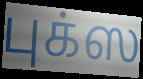
புக்ஸ